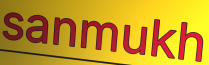
sanmukh